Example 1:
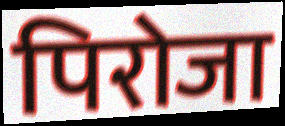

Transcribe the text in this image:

पिरोजा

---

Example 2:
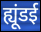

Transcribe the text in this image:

ह्यूंडई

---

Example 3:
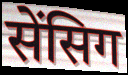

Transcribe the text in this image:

सेंसिग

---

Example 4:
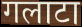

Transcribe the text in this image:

गलाटा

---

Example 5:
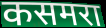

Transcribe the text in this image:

कसमरा